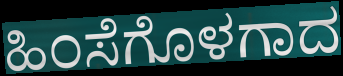
ಹಿಂಸೆಗೊಳಗಾದ